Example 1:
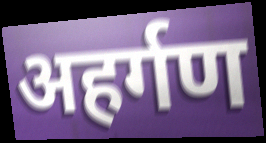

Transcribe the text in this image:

अहर्गण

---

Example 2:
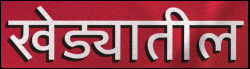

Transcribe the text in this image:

खेड्यातील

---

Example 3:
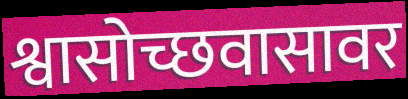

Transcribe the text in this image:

श्वासोच्छवासावर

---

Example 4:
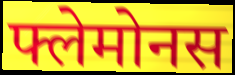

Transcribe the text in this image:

फ्लेमोनस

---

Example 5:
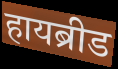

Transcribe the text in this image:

हायब्रीड